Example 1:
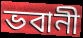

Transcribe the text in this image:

ভবানী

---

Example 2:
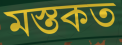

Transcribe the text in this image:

মস্তকত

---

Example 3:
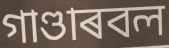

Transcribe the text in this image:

গাণ্ডাৰবল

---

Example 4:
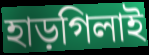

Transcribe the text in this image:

হাড়গিলাই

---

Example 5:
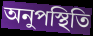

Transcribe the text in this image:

অনুপস্থিতি